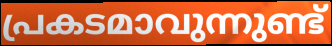
പ്രകടമാവുന്നുണ്ട്